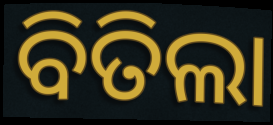
ବିତିଲା